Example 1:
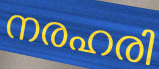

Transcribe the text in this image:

നരഹരി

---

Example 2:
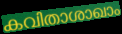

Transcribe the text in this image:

കവിതാശാഖാം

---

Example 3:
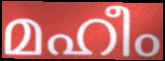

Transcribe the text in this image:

മഹീം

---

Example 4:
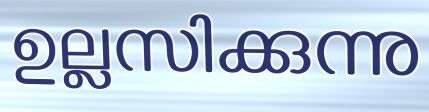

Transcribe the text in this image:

ഉല്ലസിക്കുന്നു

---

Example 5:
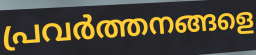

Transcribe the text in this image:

പ്രവർത്തനങ്ങളെ